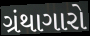
ગ્રંથાગારો